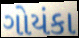
ગોયંકા